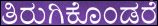
ತಿರುಗಿಕೊಂಡರೆ